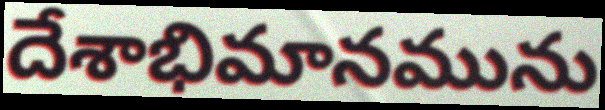
దేశాభిమానమును